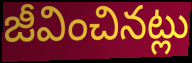
జీవించినట్లు